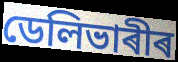
ডেলিভাৰীৰ